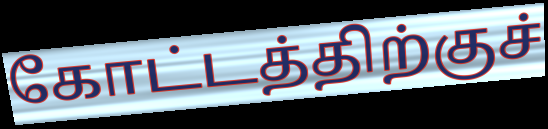
கோட்டத்திற்குச்